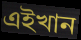
এইখান